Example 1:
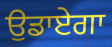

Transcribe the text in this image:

ਉਡਾਏਗਾ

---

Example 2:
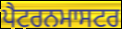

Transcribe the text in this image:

ਪੈਟਰਨਮਾਸਟਰ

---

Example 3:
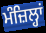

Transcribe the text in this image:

ਮੰਜ਼ਿਲ੍ਹਾਂ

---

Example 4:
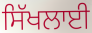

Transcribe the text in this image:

ਸਿੱਖਲਾਈ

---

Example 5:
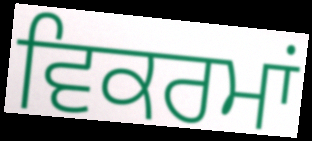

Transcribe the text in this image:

ਵਿਕਰਮਾਂ